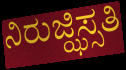
ನಿರುಜ್ಝಿಸ್ಸತಿ